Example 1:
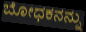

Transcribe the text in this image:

ಬೋಧಕನನ್ನು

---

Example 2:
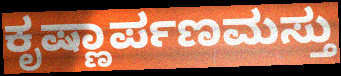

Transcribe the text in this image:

ಕೃಷ್ಣಾರ್ಪಣಮಸ್ತು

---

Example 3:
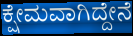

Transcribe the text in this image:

ಕ್ಷೇಮವಾಗಿದ್ದೇನೆ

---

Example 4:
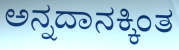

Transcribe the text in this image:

ಅನ್ನದಾನಕ್ಕಿಂತ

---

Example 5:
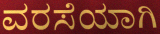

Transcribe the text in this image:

ವರಸೆಯಾಗಿ